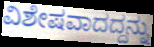
ವಿಶೇಷವಾದದ್ದನ್ನು